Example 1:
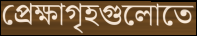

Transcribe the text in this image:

প্রেক্ষাগৃহগুলোতে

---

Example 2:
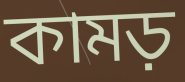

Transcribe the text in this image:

কামড়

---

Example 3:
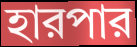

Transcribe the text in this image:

হারপার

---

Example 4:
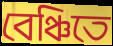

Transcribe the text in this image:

বেঞ্চিতে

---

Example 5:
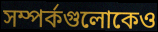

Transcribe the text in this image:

সম্পর্কগুলোকেও